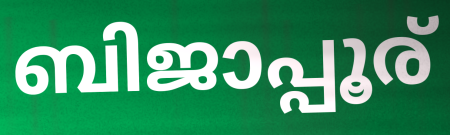
ബിജാപ്പൂര്